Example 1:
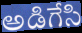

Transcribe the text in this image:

అడిగేసి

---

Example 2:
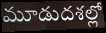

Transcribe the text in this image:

మూడుదశల్లో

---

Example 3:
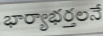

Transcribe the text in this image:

భార్యాభర్తలనే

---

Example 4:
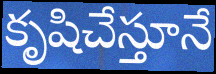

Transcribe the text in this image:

కృషిచేస్తూనే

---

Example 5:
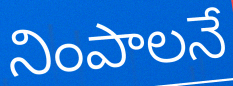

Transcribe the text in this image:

నింపాలనే